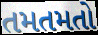
તમતમતો